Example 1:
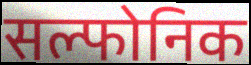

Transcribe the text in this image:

सल्फोनिक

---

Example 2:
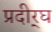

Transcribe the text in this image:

प्रदीर्घ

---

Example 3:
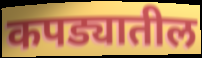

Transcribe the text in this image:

कपड्यातील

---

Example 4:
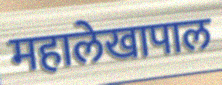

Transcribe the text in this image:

महालेखापाल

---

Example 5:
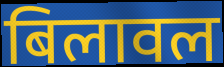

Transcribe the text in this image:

बिलावल